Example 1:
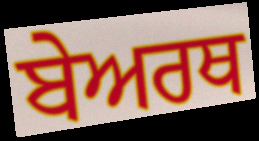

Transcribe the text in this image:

ਬੇਅਰਥ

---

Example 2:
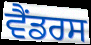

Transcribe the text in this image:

ਵੈਂਡਰਸ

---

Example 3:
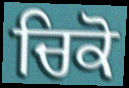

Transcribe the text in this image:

ਚਿਕੋ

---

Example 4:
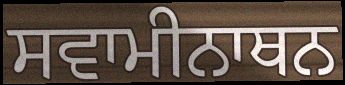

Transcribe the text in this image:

ਸਵਾਮੀਨਾਥਨ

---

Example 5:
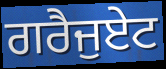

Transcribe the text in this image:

ਗਰੈਜੁਏਟ